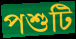
পশুটি